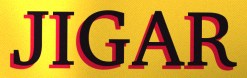
JIGAR